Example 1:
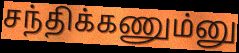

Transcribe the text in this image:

சந்திக்கணும்னு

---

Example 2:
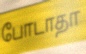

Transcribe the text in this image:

போடாதா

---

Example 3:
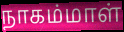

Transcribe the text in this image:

நாகம்மாள்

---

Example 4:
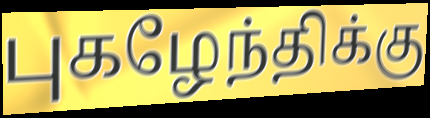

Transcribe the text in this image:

புகழேந்திக்கு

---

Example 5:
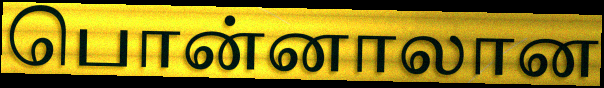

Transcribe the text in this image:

பொன்னாலான